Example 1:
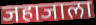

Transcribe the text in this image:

जहाजाला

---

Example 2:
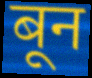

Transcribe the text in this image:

बून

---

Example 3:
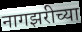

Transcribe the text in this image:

नागझरीच्या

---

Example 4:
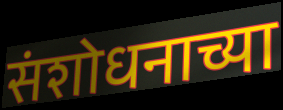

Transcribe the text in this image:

संशोधनाच्या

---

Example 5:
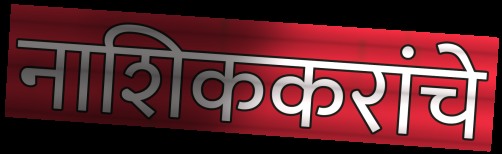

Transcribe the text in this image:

नाशिककरांचे